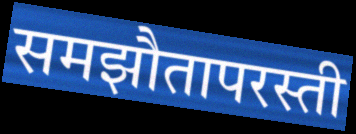
समझौतापरस्ती